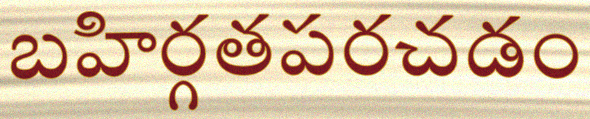
బహిర్గతపరచడం